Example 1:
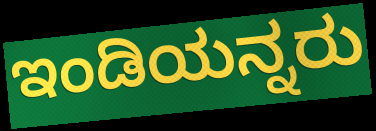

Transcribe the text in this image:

ಇಂಡಿಯನ್ನರು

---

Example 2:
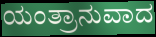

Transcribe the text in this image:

ಯಂತ್ರಾನುವಾದ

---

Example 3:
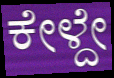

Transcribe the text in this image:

ಕೇಳ್ದೇ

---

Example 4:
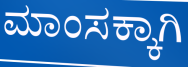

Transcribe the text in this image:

ಮಾಂಸಕ್ಕಾಗಿ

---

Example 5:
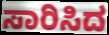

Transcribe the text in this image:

ಸಾರಿಸಿದ